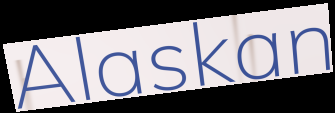
Alaskan